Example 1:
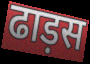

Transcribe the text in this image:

ढाड़स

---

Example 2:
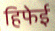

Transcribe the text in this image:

हिफेई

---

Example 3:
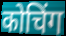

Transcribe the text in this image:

कोचिंग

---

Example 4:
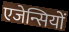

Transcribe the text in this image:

एजेन्सियों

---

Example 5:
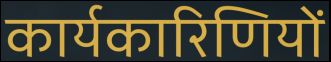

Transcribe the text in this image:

कार्यकारिणियों